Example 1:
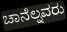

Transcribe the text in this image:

ಚಾನೆಲ್ನವರು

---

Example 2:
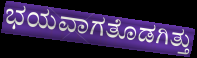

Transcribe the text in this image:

ಭಯವಾಗತೊಡಗಿತ್ತು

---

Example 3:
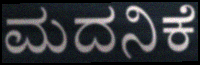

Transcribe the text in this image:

ಮದನಿಕೆ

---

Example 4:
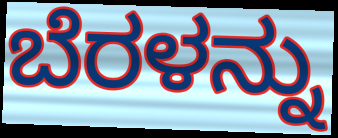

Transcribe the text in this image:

ಬೆರಳನ್ನು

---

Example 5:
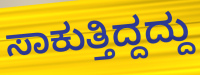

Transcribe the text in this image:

ಸಾಕುತ್ತಿದ್ದದ್ದು